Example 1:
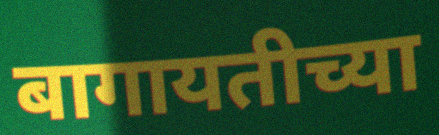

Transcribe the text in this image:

बागायतीच्या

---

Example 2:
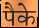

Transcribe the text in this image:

पैके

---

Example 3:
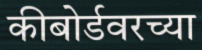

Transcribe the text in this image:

कीबोर्डवरच्या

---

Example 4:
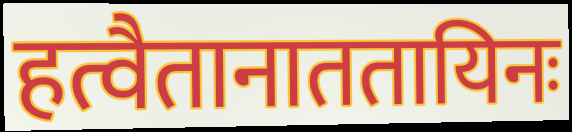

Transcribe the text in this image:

हत्वैतानाततायिनः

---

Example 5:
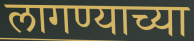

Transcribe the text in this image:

लागण्याच्या